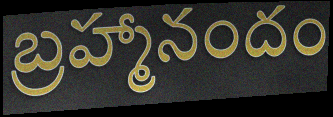
బ్రహ్మానందం